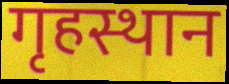
गृहस्थान